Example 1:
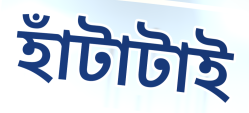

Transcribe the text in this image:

হাঁটাটাই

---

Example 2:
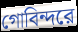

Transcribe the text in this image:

গোবিন্দরে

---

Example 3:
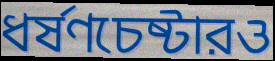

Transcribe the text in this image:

ধর্ষণচেষ্টারও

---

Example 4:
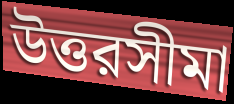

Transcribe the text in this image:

উত্তরসীমা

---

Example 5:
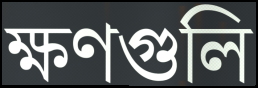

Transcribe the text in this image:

ক্ষণগুলি